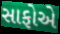
સાફોએ